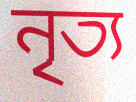
নৃত্য